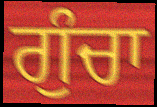
ਗੁੰਚਾ